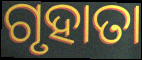
ଗୃହାତା